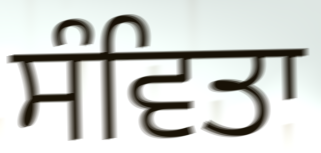
ਸੰਵਿਤਾ